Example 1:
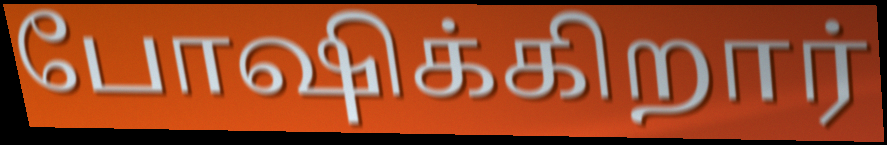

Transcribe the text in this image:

போஷிக்கிறார்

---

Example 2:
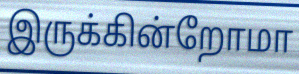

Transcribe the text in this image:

இருக்கின்றோமா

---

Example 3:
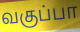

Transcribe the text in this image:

வகுப்பா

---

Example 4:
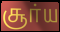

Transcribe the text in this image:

சூர்ய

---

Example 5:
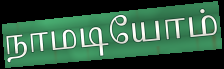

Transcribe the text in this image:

நாமடியோம்